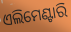
ଏଲିମେଣ୍ଟାରି